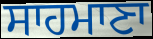
ਸਾਹਮਾਣਾ